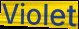
Violet